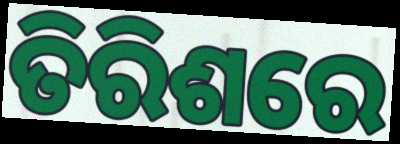
ତିରିଶରେ